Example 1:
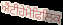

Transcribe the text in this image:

ਐਂਟੀਹੇਮੋਫਿਲਿਕ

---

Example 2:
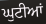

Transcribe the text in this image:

ਘੁਟੀਆਂ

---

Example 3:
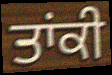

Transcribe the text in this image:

ਤਾਂਕੀ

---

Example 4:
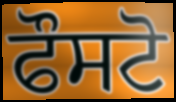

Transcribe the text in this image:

ਫੌਸਟੋ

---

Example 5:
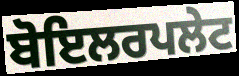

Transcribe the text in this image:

ਬੋਇਲਰਪਲੇਟ